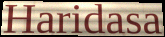
Haridasa